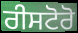
ਰੀਸਟੋਰੋ